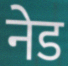
नेड